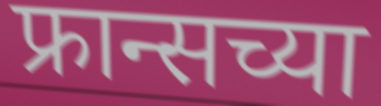
फ्रान्सच्या